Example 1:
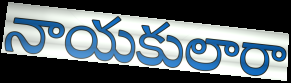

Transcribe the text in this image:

నాయకులారా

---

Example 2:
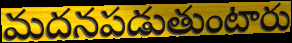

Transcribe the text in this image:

మదనపడుతుంటారు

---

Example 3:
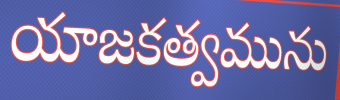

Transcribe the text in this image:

యాజకత్వమును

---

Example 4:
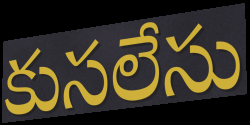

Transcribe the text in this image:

కుసలేసు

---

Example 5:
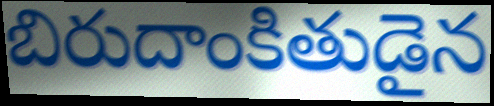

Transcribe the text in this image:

బిరుదాంకితుడైన